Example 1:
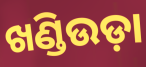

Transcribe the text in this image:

ଖଣ୍ଡିଉଡ଼ା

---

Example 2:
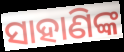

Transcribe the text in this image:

ସାହାଣିଙ୍କ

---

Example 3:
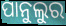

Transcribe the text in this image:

ପାନୁଲୁର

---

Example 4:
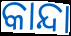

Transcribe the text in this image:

କାନ୍ଦା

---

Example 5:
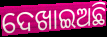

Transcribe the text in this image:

ଦେଖାଇଅଛି